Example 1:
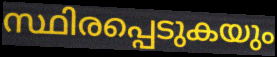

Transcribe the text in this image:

സ്ഥിരപ്പെടുകയും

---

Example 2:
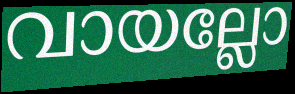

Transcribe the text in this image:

വായല്ലോ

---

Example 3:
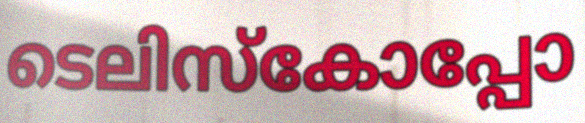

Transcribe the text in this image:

ടെലിസ്കോപ്പോ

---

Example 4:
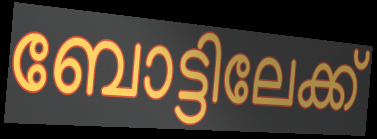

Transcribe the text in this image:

ബോട്ടിലേക്ക്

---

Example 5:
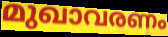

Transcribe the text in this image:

മുഖാവരണം